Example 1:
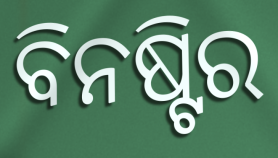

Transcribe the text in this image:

ବିନଷ୍ଟିର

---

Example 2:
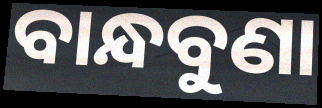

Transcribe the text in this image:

ବାନ୍ଧବୁଣା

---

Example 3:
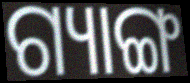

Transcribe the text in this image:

ଗ୍ୟାଙ୍ଗ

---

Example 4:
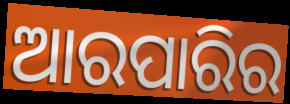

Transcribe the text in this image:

ଆରପାରିର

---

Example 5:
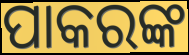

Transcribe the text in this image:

ପାକରଙ୍କ